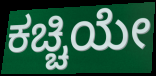
ಕಚ್ಚಿಯೇ